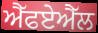
ਐੱਫਏਐੱਲ